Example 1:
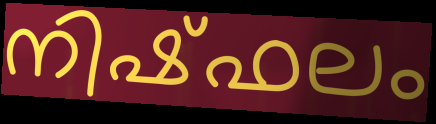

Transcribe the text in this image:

നിഷ്ഫലം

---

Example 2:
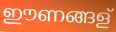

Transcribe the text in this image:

ഈണങ്ങള്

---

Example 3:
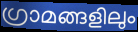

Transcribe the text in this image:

ഗ്രാമങ്ങളിലും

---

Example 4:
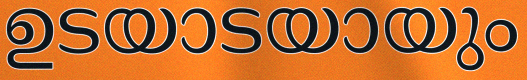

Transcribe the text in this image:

ഉടയാടയായും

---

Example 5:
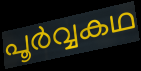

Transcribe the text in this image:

പൂർവ്വകഥ